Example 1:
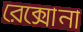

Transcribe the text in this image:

রেক্সোনা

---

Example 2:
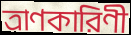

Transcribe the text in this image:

ত্রাণকারিণী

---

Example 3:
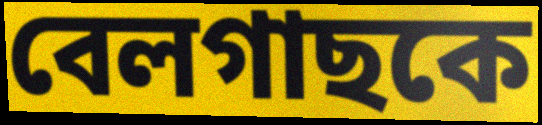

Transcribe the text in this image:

বেলগাছকে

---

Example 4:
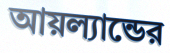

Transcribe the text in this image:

আয়ল্যান্ডের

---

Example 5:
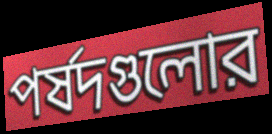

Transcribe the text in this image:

পর্ষদগুলোর